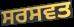
ਸਰਸਵਤ